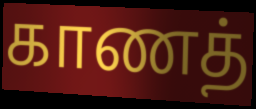
காணத்